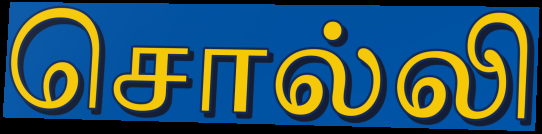
சொல்லி